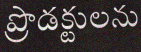
ప్రొడక్టులను